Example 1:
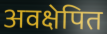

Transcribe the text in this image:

अवक्षेपित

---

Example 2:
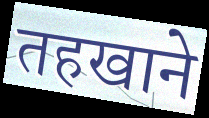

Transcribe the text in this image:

तहखाने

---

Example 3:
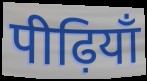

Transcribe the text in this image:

पीढ़ियाँ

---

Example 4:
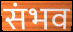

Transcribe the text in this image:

संभव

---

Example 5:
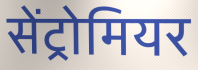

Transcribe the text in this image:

सेंट्रोमियर